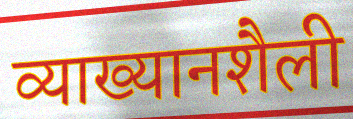
व्याख्यानशैली